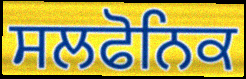
ਸਲਫੋਨਿਕ